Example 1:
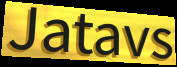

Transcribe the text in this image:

Jatavs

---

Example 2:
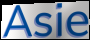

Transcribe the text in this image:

Asie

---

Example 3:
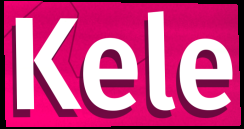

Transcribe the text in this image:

Kele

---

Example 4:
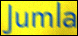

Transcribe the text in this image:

Jumla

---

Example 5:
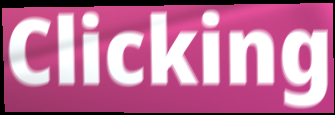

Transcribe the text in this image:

Clicking